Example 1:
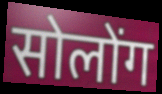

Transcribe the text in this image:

सोलोंग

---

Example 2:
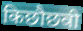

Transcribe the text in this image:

किछौछवी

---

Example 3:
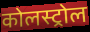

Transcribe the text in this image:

कोलस्ट्रोल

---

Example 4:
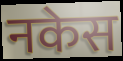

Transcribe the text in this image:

नकेस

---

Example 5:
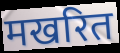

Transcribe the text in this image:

मखरित